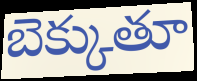
బెక్కుతూ